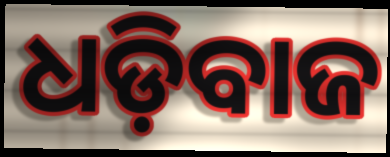
ଧଡ଼ିବାଜ